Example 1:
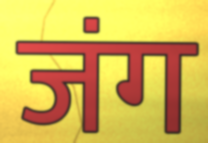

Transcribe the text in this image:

जंग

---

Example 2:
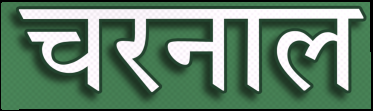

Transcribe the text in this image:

चरनाल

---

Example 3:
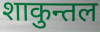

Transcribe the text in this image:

शाकुन्तल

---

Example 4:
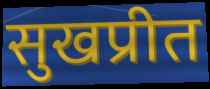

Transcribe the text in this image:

सुखप्रीत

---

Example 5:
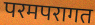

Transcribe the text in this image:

परमपरागत